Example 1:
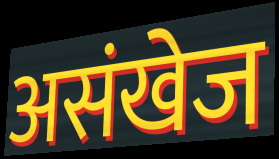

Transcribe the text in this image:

असंखेज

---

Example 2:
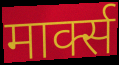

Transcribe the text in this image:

मार्क्स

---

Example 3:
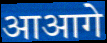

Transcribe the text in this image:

आआगे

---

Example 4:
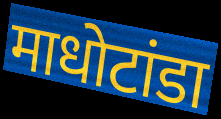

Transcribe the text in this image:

माधोटांडा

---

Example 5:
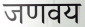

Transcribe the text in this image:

जणवय